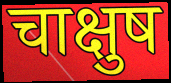
चाक्षुष